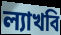
ল্যাখবি